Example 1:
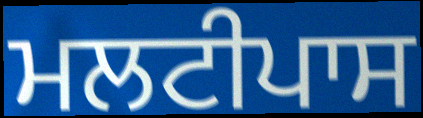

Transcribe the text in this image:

ਮਲਟੀਪਾਸ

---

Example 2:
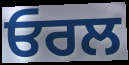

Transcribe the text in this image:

ਓਰਲ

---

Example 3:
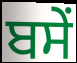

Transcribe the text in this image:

ਬਸੇਂ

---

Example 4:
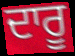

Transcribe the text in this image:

ਦਾਰੂ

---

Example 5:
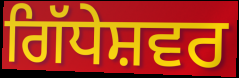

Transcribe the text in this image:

ਗਿੱਧੇਸ਼ਵਰ